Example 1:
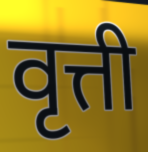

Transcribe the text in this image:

वृत्ती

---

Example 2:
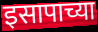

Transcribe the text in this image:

इसापाच्या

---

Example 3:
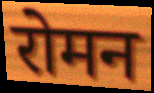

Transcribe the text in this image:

रोमन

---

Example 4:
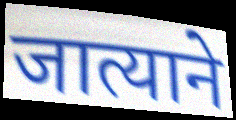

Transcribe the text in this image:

जात्याने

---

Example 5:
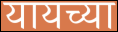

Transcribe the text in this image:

यायच्या